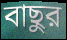
বাছুর